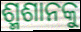
ଶ୍ମଶାନକୁ